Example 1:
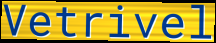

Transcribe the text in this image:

Vetrivel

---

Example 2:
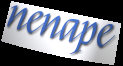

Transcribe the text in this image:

nenape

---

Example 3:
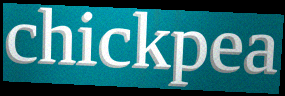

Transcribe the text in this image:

chickpea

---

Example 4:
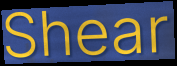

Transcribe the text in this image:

Shear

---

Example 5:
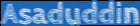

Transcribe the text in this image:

Asaduddin